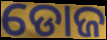
ଡୋଜ